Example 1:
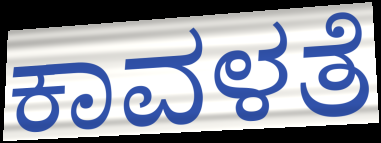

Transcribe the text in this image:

ಕಾವಳತೆ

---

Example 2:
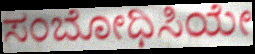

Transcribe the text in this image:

ಸಂಬೋಧಿಸಿಯೇ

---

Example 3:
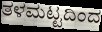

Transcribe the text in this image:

ತಳಮಟ್ಟದಿಂದ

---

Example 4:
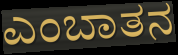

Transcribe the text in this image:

ಎಂಬಾತನ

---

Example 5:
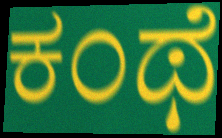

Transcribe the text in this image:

ಕಂಥೆ